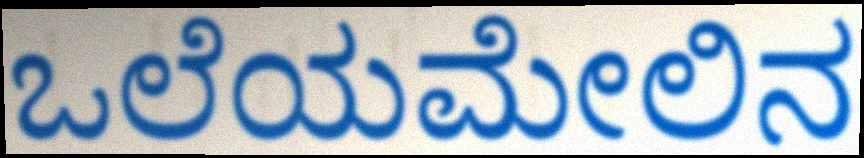
ಒಲೆಯಮೇಲಿನ